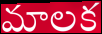
మాలక